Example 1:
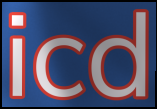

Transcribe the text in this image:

icd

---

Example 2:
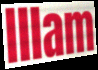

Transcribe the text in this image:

Illam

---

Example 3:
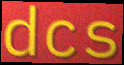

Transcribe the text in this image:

dcs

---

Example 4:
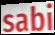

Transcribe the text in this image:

sabi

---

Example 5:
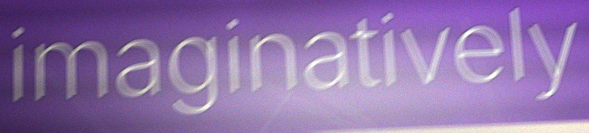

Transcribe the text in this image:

imaginatively